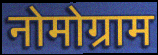
नोमोग्राम